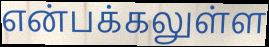
என்பக்கலுள்ள